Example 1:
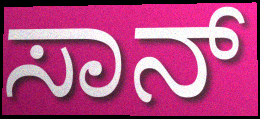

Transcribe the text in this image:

ಸಾನ್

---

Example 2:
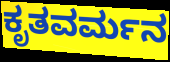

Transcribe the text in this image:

ಕೃತವರ್ಮನ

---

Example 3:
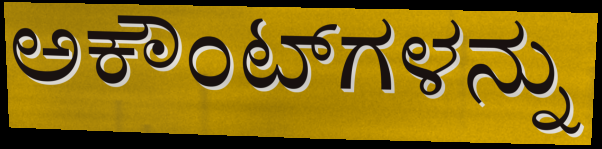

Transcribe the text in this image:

ಅಕೌಂಟ್‌ಗಳನ್ನು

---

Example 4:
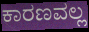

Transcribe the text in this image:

ಕಾರಣವಲ್ಲ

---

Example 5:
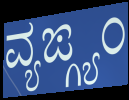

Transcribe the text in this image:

ವ್ಯಙ್ಗ್ಯಂ